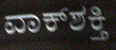
ವಾಕ್‌ಶಕ್ತಿ